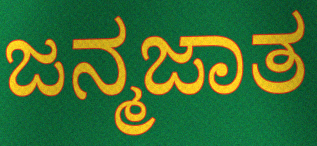
ಜನ್ಮಜಾತ